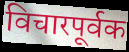
विचारपूर्वक